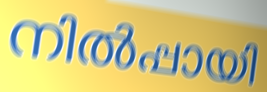
നിൽപ്പായി